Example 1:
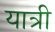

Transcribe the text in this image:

यात्री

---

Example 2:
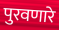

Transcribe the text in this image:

पुरवणारे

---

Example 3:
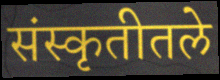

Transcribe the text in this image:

संस्कृतीतले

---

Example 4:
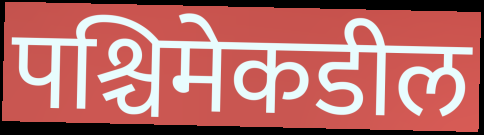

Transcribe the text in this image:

पश्चिमेकडील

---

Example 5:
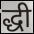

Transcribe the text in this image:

द्धी